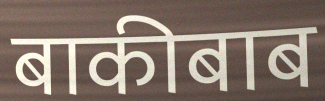
बाकीबाब